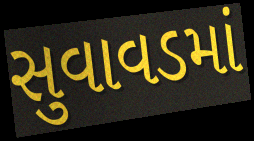
સુવાવડમાં